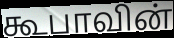
கூபாவின்